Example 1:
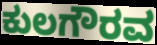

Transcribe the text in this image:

ಕುಲಗೌರವ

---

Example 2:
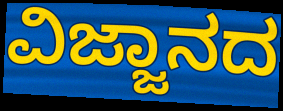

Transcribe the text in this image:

ವಿಜ್ಜಾನದ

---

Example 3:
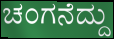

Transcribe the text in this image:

ಚಂಗನೆದ್ದು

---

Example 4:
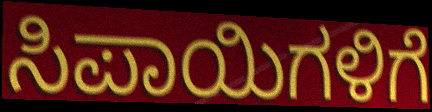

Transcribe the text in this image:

ಸಿಪಾಯಿಗಳಿಗೆ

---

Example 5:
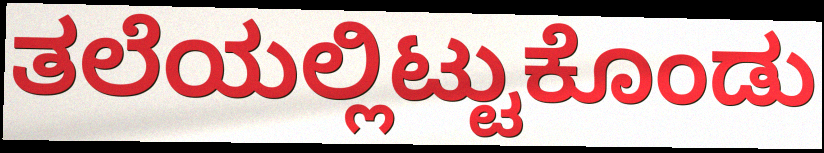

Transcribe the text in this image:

ತಲೆಯಲ್ಲಿಟ್ಟುಕೊಂಡು